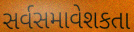
સર્વસમાવેશકતા